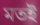
মতই